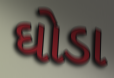
ઘોડા